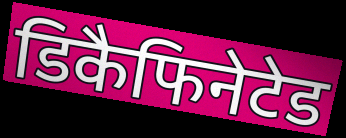
डिकैफिनेटेड